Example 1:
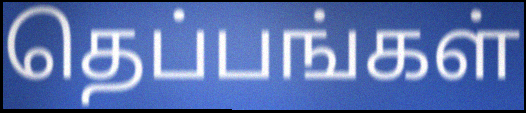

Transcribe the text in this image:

தெப்பங்கள்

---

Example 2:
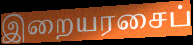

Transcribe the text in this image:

இறையரசைப்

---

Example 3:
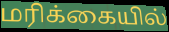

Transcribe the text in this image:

மரிக்கையில்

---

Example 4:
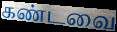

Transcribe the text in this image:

கண்டவை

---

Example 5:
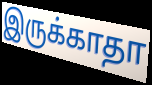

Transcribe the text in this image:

இருக்காதா